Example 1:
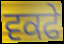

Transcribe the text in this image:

ਵਕਫੇ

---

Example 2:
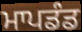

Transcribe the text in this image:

ਮਾਪਡੰਡ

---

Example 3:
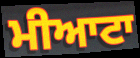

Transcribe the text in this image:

ਮੀਆਟਾ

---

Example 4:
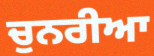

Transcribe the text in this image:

ਚੁਨਰੀਆ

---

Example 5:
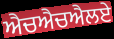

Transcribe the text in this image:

ਐਚਐਚਐਲਏ